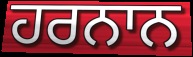
ਹਰਨਾਨ